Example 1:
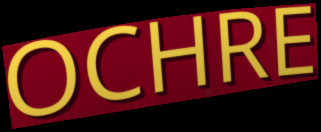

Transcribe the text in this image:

OCHRE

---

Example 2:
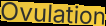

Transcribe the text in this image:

Ovulation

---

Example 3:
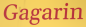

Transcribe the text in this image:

Gagarin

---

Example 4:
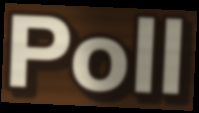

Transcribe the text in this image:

Poll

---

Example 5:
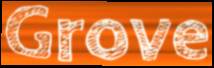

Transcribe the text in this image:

Grove